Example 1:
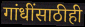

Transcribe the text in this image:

गांधींसाठीही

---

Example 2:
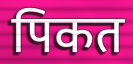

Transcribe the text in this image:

पिकत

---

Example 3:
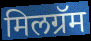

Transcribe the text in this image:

मिलग्रॅम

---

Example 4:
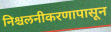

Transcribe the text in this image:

निश्चलनीकरणापासून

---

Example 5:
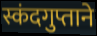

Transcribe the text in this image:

स्कंदगुप्ताने